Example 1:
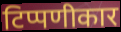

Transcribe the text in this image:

टिप्पणीकार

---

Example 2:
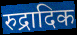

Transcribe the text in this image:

रुद्रादिक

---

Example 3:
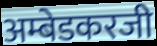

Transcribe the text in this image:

अम्बेडकरजी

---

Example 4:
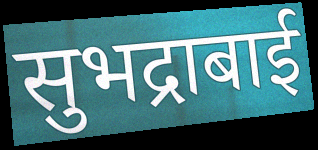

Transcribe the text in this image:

सुभद्राबाई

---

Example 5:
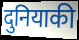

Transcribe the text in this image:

दुनियाकी